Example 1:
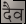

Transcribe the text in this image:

दैव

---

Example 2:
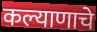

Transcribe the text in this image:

कल्याणाचे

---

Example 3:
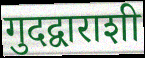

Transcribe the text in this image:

गुदद्वाराशी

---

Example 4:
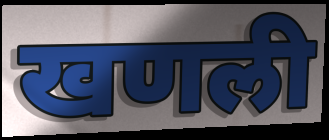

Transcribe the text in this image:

खणली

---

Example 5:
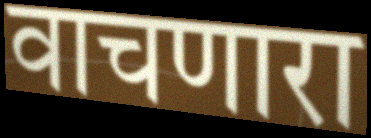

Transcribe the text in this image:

वाचणारा